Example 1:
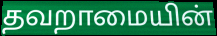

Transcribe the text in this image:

தவறாமையின்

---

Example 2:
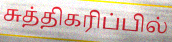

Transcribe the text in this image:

சுத்திகரிப்பில்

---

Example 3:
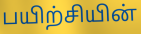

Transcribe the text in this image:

பயிற்சியின்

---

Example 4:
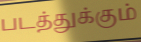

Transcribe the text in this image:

படத்துக்கும்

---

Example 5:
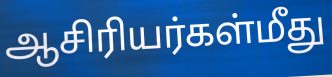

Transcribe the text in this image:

ஆசிரியர்கள்மீது